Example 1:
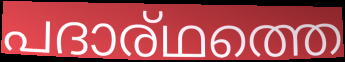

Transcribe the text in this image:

പദാര്ഥത്തെ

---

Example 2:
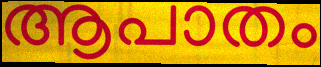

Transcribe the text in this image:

ആപാതം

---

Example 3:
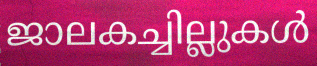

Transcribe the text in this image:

ജാലകച്ചില്ലുകൾ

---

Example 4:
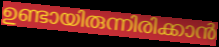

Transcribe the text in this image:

ഉണ്ടായിരുന്നിരിക്കാൻ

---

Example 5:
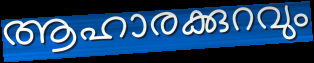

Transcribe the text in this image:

ആഹാരക്കുറവും